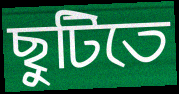
ছুটিতে